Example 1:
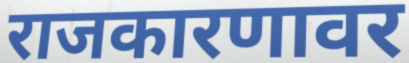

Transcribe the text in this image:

राजकारणावर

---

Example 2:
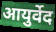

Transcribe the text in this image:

आयुर्वेद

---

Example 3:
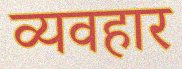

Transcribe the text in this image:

व्यवहार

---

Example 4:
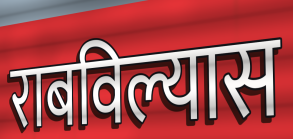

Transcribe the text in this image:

राबविल्यास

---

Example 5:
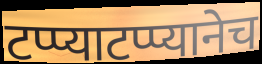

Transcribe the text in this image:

टप्प्याटप्प्यानेच